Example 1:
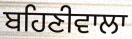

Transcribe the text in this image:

ਬਹਿਣੀਵਾਲਾ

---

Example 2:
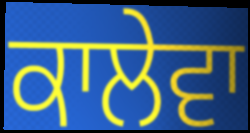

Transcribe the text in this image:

ਕਾਲੇਵਾ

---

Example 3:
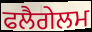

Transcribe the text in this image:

ਫਲੈਗੇਲਮ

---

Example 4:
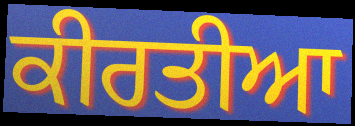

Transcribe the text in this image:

ਕੀਰਤੀਆ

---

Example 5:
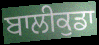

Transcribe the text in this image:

ਬਾਲੀਕੁਡਾ